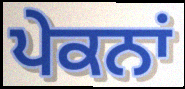
ਪੇਕਨਾਂ